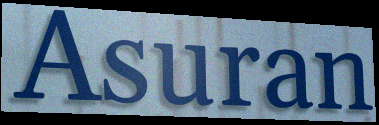
Asuran